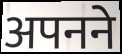
अपनने